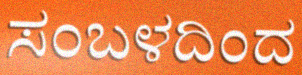
ಸಂಬಳದಿಂದ